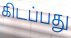
கிடப்பது